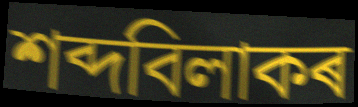
শব্দবিলাকৰ